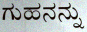
ಗುಹನನ್ನು